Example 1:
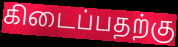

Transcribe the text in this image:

கிடைப்பதற்கு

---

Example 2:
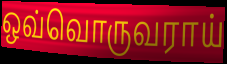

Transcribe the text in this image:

ஒவ்வொருவராய்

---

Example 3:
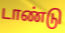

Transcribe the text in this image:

டாண்டு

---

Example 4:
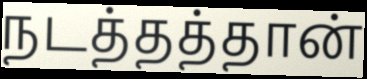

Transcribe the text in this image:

நடத்தத்தான்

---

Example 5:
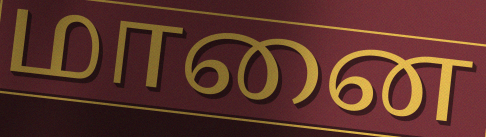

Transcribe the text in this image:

மானை